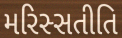
મરિસ્સતીતિ